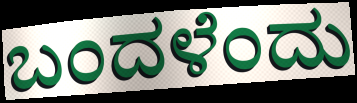
ಬಂದಳೆಂದು